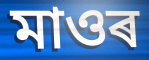
মাওৰ